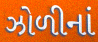
ઝોળીનાં